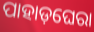
ପାହାଡ଼ଘେରା